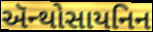
ઍન્થોસાયનિન